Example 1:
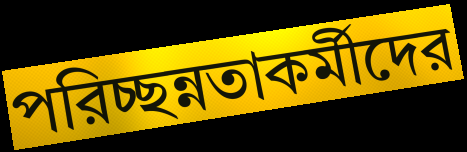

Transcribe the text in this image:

পরিচ্ছন্নতাকর্মীদের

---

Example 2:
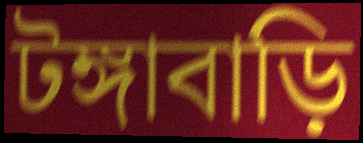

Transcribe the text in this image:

টঙ্গাবাড়ি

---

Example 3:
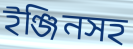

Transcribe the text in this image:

ইঞ্জিনসহ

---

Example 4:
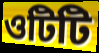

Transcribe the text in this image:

ওটিটি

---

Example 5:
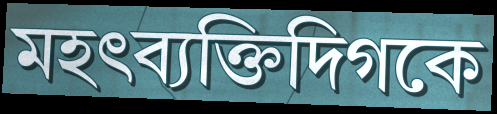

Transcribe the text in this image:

মহৎব্যক্তিদিগকে